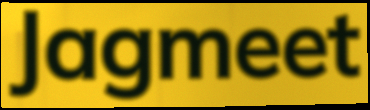
Jagmeet